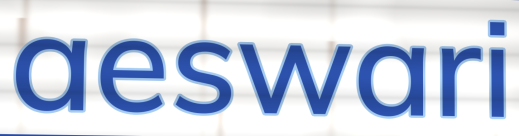
aeswari